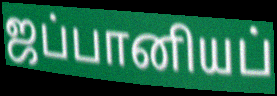
ஜப்பானியப்